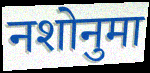
नशोनुमा